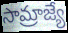
సామ్రాజ్యే